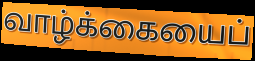
வாழ்க்கையைப்